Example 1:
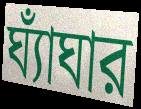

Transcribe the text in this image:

ঘ্যাঁঘার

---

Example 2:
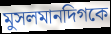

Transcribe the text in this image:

মুসলমানদিগকে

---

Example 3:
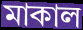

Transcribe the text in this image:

মাকাল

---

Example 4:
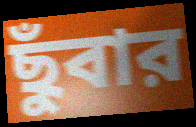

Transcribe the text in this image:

ছুঁবার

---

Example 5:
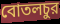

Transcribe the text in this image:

বোতলচুর